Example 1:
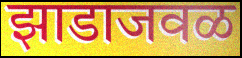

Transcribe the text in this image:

झाडाजवळ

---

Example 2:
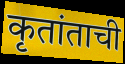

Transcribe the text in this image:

कृतांताची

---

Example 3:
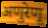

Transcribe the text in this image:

अणुरेणू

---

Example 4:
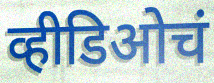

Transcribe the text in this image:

व्हीडिओचं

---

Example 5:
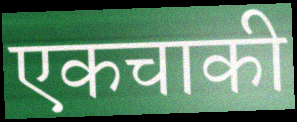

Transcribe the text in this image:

एकचाकी